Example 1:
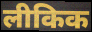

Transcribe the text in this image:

लीकिक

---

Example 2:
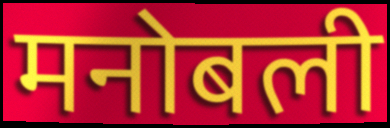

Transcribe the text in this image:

मनोबली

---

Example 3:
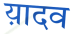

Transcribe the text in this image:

य़ादव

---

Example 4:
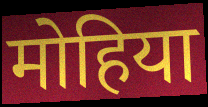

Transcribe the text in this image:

मोहिया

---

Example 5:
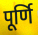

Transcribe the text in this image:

पूर्णि